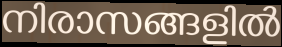
നിരാസങ്ങളിൽ